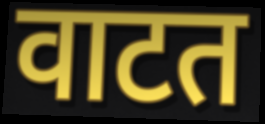
वाटत